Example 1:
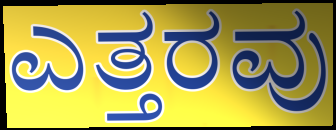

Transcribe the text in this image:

ಎತ್ತರವು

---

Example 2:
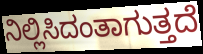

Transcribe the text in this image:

ನಿಲ್ಲಿಸಿದಂತಾಗುತ್ತದೆ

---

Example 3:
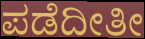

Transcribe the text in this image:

ಪಡೆದೀತೀ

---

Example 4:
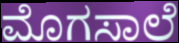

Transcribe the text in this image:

ಮೊಗಸಾಲೆ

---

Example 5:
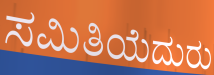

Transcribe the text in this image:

ಸಮಿತಿಯೆದುರು